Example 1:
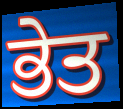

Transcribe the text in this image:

ਭੇਤ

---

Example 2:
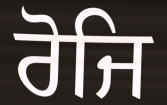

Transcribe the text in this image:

ਰੋਜਿ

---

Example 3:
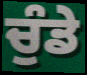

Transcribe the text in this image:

ਚੁੰਡੇ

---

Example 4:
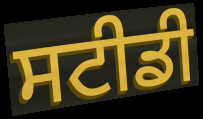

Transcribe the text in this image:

ਸਟੀਡੀ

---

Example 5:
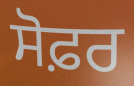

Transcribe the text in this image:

ਸੋਫ਼ਰ